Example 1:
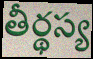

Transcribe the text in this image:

తీర్థస్య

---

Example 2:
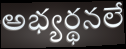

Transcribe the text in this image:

అభ్యర్థనలే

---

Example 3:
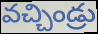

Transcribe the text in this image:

వచ్చిండ్రు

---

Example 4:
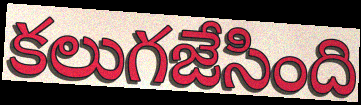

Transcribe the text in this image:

కలుగజేసింది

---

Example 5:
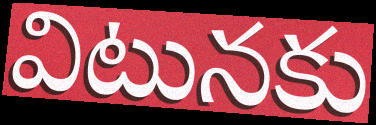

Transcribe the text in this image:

విటునకు